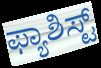
ಫ್ಯಾಶಿಸ್ಟ್